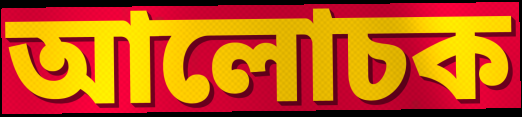
আলোচক